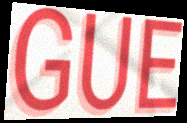
GUE